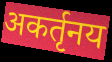
अकर्तृनय